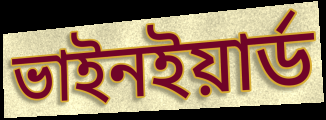
ভাইনইয়ার্ড